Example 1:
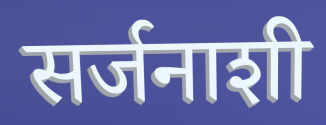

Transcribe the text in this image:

सर्जनाशी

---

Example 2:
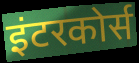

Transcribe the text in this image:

इंटरकोर्स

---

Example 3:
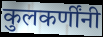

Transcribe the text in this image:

कुलकर्णींनी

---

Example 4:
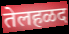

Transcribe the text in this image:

तेलहळद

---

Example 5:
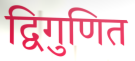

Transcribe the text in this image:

द्विगुणित